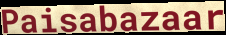
Paisabazaar